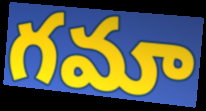
గమా